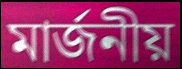
মার্জনীয়